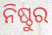
ନିଷ୍ଠୁର